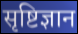
सृष्टिज्ञान